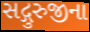
સદ્ગુરુજીના